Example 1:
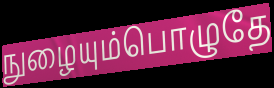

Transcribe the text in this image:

நுழையும்பொழுதே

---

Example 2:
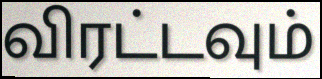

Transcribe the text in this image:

விரட்டவும்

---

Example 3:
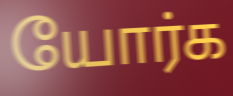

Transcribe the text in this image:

யோர்க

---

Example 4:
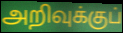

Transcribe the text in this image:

அறிவுக்குப்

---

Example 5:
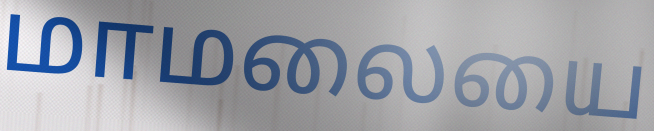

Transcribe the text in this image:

மாமலையை